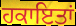
ਹਕਾਇਤਾਂ